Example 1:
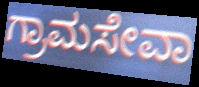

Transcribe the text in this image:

ಗ್ರಾಮಸೇವಾ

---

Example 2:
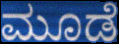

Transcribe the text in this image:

ಮೂಡೆ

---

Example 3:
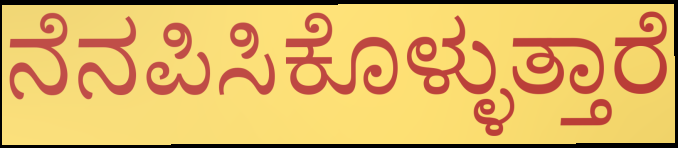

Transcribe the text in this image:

ನೆನಪಿಸಿಕೊಳ್ಳುತ್ತಾರೆ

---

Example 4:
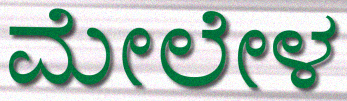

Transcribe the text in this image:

ಮೇಲೇಳ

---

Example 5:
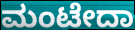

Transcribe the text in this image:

ಮಂಟೇದಾ